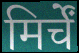
मिर्चें